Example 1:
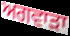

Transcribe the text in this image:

ਅਗਵਾੜਾ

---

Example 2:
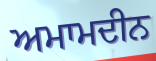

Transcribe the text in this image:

ਅਮਾਮਦੀਨ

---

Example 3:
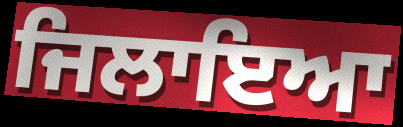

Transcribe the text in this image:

ਜਿਲਾਇਆ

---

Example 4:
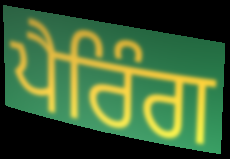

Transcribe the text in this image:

ਪੈਰਿੰਗ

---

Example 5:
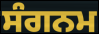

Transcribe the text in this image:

ਸੰਗਨਮ